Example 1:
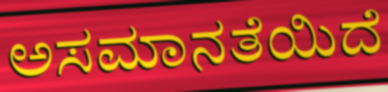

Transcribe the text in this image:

ಅಸಮಾನತೆಯಿದೆ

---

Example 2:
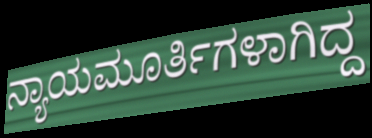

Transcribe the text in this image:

ನ್ಯಾಯಮೂರ್ತಿಗಳಾಗಿದ್ದ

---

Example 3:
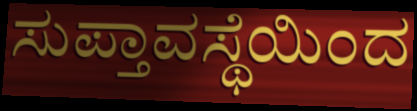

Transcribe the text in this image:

ಸುಪ್ತಾವಸ್ಥೆಯಿಂದ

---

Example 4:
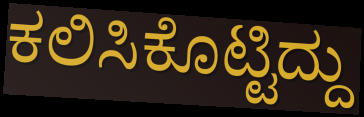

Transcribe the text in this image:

ಕಲಿಸಿಕೊಟ್ಟಿದ್ದು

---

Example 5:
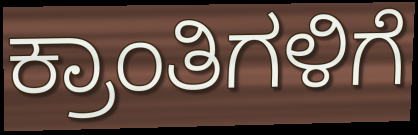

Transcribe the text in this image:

ಕ್ರಾಂತಿಗಳಿಗೆ